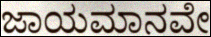
ಜಾಯಮಾನವೇ